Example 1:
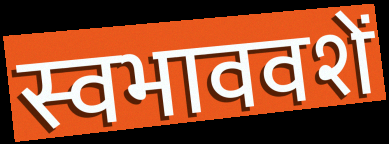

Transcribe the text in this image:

स्वभाववशें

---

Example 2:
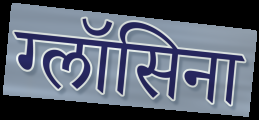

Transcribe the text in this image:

ग्लॉसिना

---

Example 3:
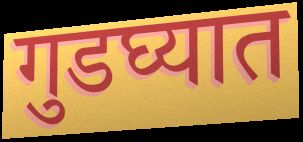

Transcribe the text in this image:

गुडघ्यात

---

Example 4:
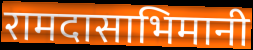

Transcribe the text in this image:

रामदासाभिमानी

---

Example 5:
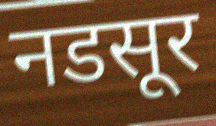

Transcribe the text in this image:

नडसूर